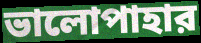
ভালোপাহার